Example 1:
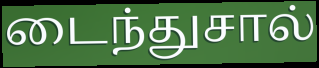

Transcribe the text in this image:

டைந்துசால்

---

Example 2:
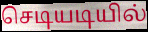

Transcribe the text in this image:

செடியடியில்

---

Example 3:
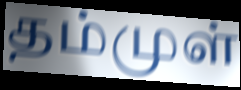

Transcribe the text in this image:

தம்முள்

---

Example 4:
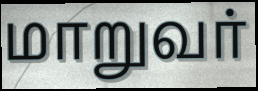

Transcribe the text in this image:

மாறுவர்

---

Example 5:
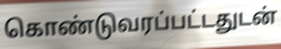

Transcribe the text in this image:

கொண்டுவரப்பட்டதுடன்